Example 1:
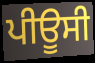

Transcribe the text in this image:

ਪੀਊਸੀ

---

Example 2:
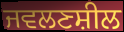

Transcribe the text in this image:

ਜਵਲਣਸ਼ੀਲ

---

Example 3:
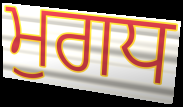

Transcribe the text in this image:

ਮੁਗਧ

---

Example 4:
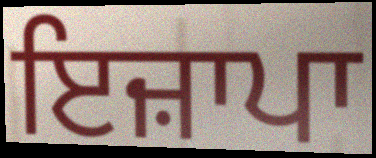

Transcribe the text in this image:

ਇਜ਼ਾਪਾ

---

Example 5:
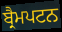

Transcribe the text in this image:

ਬ੍ਰੈਮਪਟਨ